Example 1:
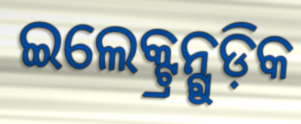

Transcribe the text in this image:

ଇଲେକ୍ଟ୍ରନ୍ଗୁଡ଼ିକ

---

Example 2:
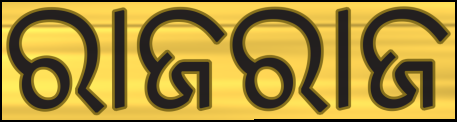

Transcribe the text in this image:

ରାଜରାଜ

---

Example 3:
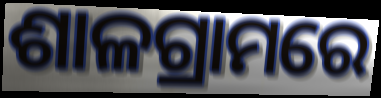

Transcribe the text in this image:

ଶାଳଗ୍ରାମରେ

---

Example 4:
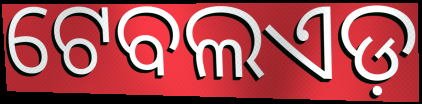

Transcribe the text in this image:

ଟେବଲଏଡ଼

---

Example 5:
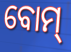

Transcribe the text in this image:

ବୋମ୍